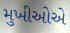
મુખીઓએ